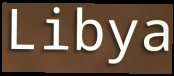
Libya